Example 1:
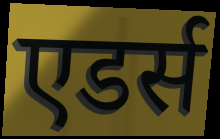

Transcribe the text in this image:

एडर्स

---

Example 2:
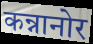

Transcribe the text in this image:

कन्नानोर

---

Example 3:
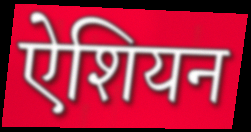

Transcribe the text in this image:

ऐशियन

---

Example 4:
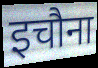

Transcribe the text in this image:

इचौना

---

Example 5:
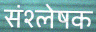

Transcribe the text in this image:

संश्लेषक